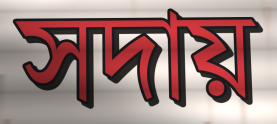
সদায়